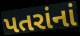
પતરાંનાં